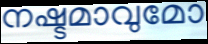
നഷ്ടമാവുമോ